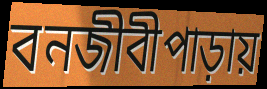
বনজীবীপাড়ায়